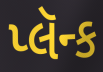
પ્લૅન્ક